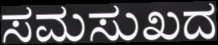
ಸಮಸುಖದ